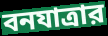
বনযাত্রার